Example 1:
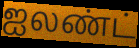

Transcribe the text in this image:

ஐலண்ட்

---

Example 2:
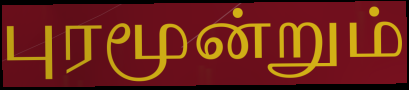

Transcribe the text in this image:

புரமூன்றும்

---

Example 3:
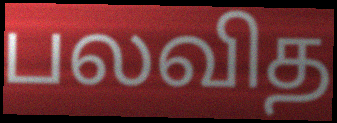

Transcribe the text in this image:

பலவித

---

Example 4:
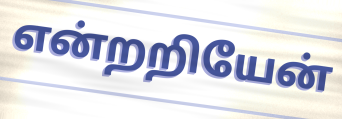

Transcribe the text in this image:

என்றறியேன்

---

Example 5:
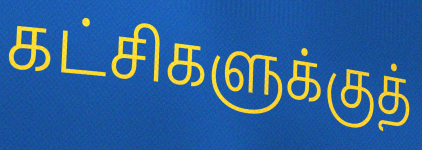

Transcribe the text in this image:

கட்சிகளுக்குத்